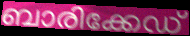
ബാരിക്കേഡ്